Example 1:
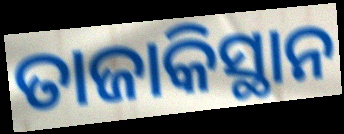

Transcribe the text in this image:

ତାଜାକିସ୍ଥାନ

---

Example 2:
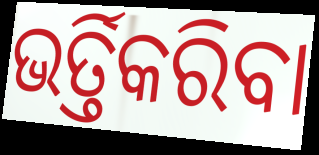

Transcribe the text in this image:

ଭର୍ତ୍ତିକରିବା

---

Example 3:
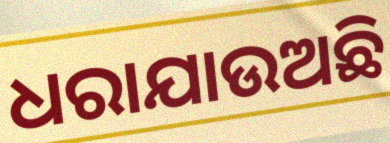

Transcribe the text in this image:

ଧରାଯାଉଅଛି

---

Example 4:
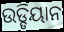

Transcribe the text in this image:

ଉଡ୍ଡିୟାନ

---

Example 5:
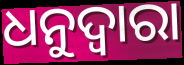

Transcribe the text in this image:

ଧନୁଦ୍ୱାରା